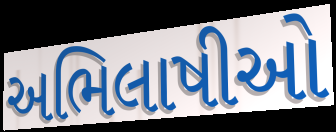
અભિલાષીઓ